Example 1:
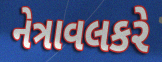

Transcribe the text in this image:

નેત્રાવલકરે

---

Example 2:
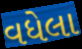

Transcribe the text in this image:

વધેલા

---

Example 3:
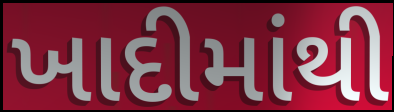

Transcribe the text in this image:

ખાદીમાંથી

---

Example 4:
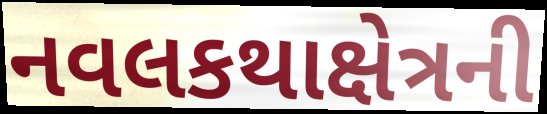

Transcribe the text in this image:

નવલકથાક્ષેત્રની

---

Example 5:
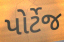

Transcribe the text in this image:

પોર્ટેજ